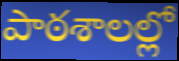
పాఠశాలల్లో